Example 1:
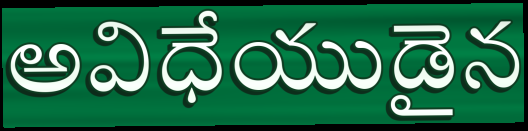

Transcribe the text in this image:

అవిధేయుడైన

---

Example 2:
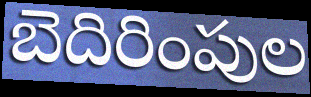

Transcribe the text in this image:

బెదిరింపుల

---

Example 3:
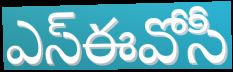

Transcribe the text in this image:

ఎస్ఈవోసీ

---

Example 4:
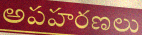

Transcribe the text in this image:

అపహరణలు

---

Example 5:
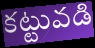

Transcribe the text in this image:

కట్టువడి